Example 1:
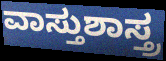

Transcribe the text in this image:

ವಾಸ್ತುಶಾಸ್ತ್ರ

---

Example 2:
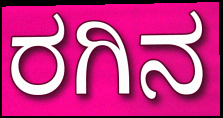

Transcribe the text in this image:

ರಗಿನ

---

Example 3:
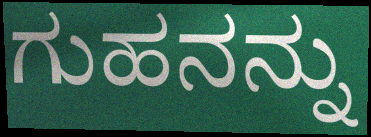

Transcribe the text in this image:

ಗುಹನನ್ನು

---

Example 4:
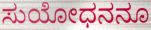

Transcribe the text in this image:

ಸುಯೋಧನನೂ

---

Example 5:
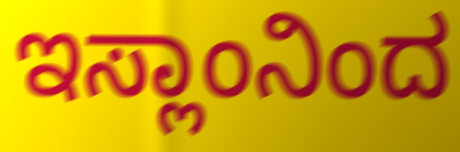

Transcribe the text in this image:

ಇಸ್ಲಾಂನಿಂದ